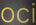
oci